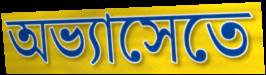
অভ্যাসেতে